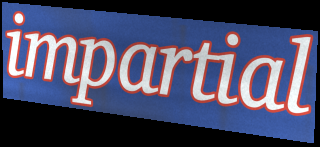
impartial